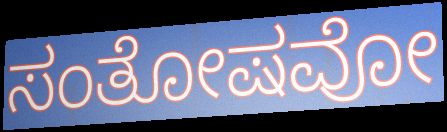
ಸಂತೋಷವೋ